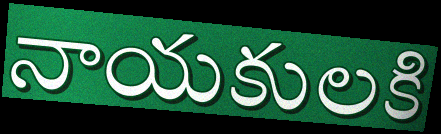
నాయకులకి